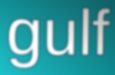
gulf